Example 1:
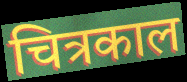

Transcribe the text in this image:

चित्रकाल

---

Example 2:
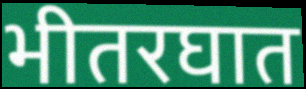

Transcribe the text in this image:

भीतरघात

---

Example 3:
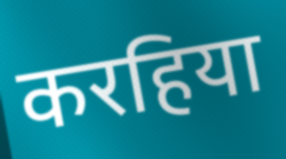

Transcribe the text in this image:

करहिया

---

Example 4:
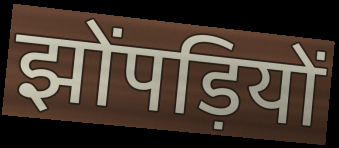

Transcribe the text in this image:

झोंपड़ियों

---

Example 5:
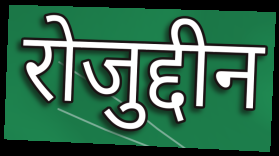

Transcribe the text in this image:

रोजुद्दीन